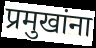
प्रमुखांना